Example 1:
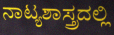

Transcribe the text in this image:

ನಾಟ್ಯಶಾಸ್ತ್ರದಲ್ಲಿ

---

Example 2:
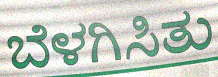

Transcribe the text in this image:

ಬೆಳಗಿಸಿತು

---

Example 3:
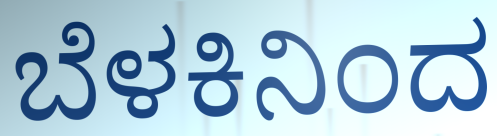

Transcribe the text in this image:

ಬೆಳಕಿನಿಂದ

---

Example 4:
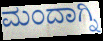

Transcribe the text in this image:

ಮಂದಾಗ್ನಿ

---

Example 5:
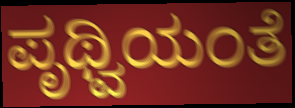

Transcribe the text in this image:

ಪೃಥ್ವಿಯಂತೆ